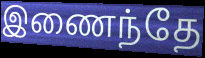
இணைந்தே